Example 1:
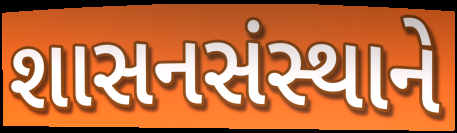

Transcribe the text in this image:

શાસનસંસ્થાને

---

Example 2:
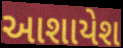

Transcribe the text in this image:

આશાયેશ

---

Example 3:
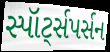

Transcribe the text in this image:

સ્પૉર્ટ્સપર્સન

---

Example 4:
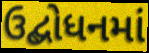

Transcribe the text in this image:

ઉદ્બોધનમાં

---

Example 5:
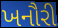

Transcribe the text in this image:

ખનૌરી